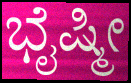
ಭೈಷ್ಮೀ